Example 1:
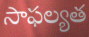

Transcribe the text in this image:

సాఫల్యత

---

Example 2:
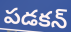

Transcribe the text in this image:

పడకన్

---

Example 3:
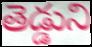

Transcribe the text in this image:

తెడ్డుని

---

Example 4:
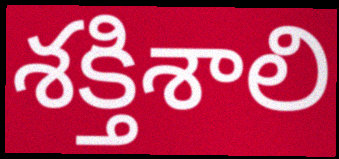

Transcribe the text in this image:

శక్తిశాలి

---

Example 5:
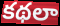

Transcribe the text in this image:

కథలా